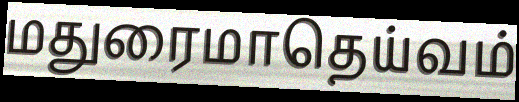
மதுரைமாதெய்வம்